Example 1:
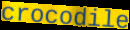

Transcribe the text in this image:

crocodile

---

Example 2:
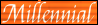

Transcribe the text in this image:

Millennial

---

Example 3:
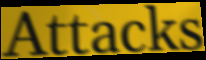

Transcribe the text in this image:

Attacks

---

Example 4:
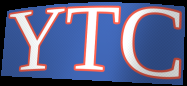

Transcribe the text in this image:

YTC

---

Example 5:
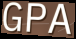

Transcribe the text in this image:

GPA